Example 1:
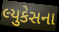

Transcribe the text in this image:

લ્યુકેસના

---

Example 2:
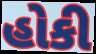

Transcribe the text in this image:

હોકી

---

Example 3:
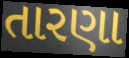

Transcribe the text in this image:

તારણા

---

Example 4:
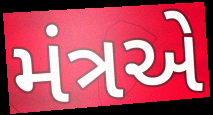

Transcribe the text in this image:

મંત્રએ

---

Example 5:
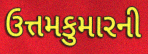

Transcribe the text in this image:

ઉત્તમકુમારની